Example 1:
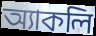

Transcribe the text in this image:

অ্যাকলি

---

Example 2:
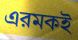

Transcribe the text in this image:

এরমকই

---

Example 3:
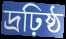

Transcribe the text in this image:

দ্রঢ়িষ্ঠ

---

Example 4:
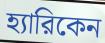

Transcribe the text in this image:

হ্যারিকেন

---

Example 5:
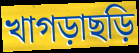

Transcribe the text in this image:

খাগড়াছড়ি